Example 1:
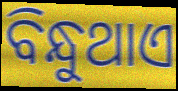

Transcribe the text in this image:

ବିନ୍ଧୁଥାଏ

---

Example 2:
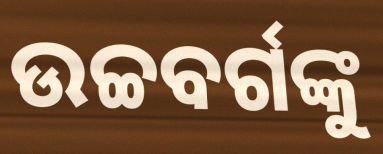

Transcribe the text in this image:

ଉଚ୍ଚବର୍ଗଙ୍କୁ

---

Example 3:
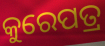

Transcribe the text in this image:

କୁରେପତ୍ର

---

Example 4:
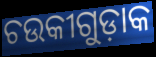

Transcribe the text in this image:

ଚଉକୀଗୁଡ଼ାକ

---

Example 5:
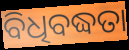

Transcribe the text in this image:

ବିଧିବଦ୍ଧତା